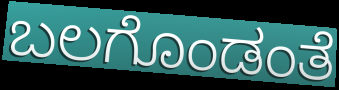
ಬಲಗೊಂಡಂತೆ